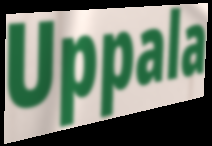
Uppala